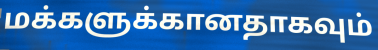
மக்களுக்கானதாகவும்